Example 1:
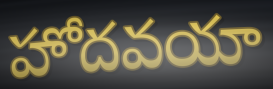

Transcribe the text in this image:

హోదవయా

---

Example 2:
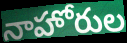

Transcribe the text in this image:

నాహోరుల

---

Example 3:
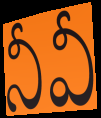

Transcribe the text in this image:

నీవీ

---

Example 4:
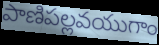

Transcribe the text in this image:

పాణిపల్లవయుగాం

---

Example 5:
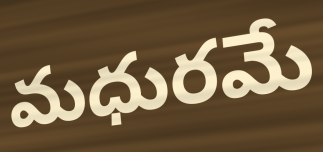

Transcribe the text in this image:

మధురమే